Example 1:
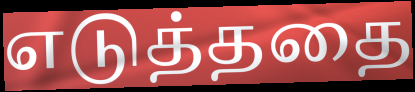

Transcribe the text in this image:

எடுத்ததை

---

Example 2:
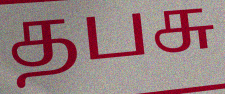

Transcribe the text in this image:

தபசு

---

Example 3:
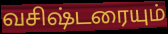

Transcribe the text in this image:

வசிஷ்டரையும்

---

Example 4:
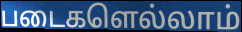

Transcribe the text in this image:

படைகளெல்லாம்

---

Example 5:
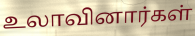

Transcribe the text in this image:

உலாவினார்கள்